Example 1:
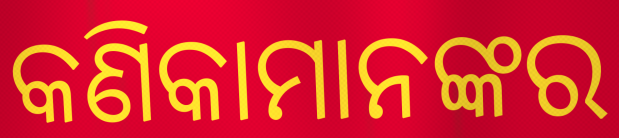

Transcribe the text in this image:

କଣିକାମାନଙ୍କର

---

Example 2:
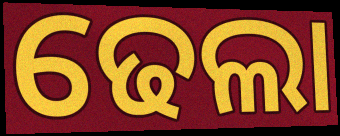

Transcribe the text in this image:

ଢେଲା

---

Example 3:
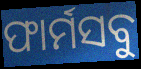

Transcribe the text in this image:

ଫାର୍ମସବୁ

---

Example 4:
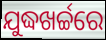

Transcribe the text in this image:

ଯୁଦ୍ଧଖର୍ଚ୍ଚରେ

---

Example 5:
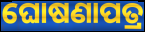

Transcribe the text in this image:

ଘୋଷଣାପତ୍ର